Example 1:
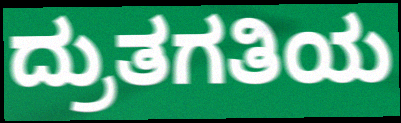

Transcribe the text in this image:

ದ್ರುತಗತಿಯ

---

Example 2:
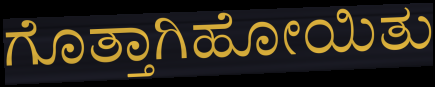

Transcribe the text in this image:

ಗೊತ್ತಾಗಿಹೋಯಿತು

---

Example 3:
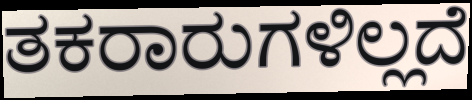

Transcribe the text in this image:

ತಕರಾರುಗಳಿಲ್ಲದೆ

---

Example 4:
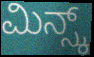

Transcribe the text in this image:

ಮಿನ್ಸ್ಕ್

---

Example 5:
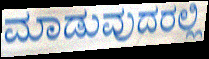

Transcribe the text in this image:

ಮಾಡುವುದರಲ್ಲಿ